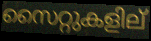
സൈറ്റുകളില്